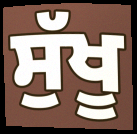
ਸੁੱਖੂ